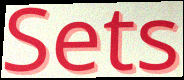
Sets